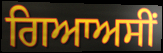
ਗਿਆਅਸੀਂ